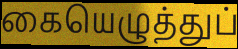
கையெழுத்துப்